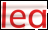
lea